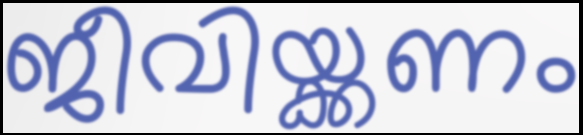
ജീവിയ്ക്കണം